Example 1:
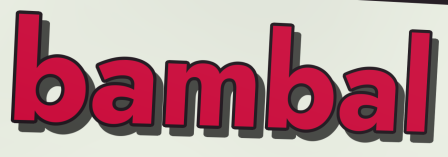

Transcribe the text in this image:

bambal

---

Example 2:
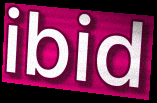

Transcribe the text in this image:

ibid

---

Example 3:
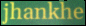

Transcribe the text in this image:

jhankhe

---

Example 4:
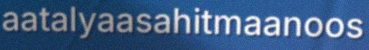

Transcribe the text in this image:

aatalyaasahitmaanoos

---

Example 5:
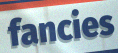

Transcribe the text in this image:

fancies